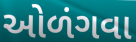
ઓળંગવા